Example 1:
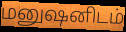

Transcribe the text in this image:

மனுஷனிடம்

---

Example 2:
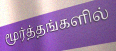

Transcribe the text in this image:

மூர்த்தங்களில்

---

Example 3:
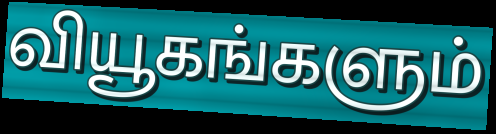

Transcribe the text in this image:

வியூகங்களும்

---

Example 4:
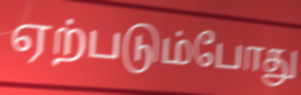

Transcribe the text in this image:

ஏற்படும்போது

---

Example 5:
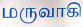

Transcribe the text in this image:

மருவாகி